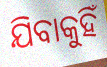
ଯିବାକୁହିଁ